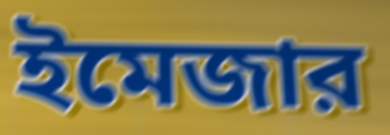
ইমেজার